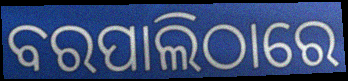
ବରପାଲିଠାରେ